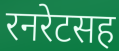
रनरेटसह